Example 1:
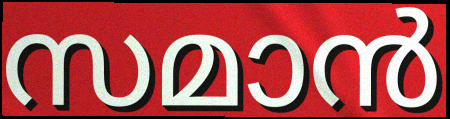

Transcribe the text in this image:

സമാൻ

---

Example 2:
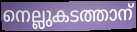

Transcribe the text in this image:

നെല്ലുകടത്താന്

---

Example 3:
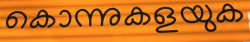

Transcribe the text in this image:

കൊന്നുകളയുക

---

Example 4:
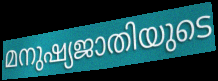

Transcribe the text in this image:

മനുഷ്യജാതിയുടെ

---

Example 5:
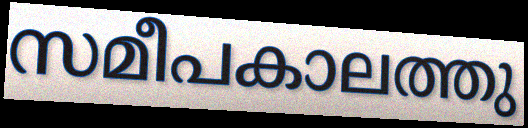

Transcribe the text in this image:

സമീപകാലത്തു